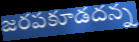
జరపకూడదన్న